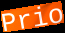
Prio